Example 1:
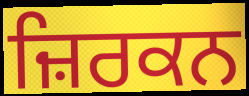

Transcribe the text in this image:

ਜ਼ਿਰਕਨ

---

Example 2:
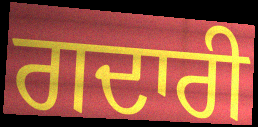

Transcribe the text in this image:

ਗਦਾਰੀ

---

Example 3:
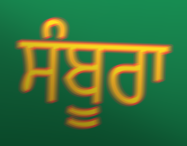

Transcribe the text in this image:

ਸੰਬੂਰਾ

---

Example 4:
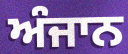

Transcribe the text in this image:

ਅੰਜਾਨ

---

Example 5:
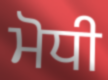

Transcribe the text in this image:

ਮੋਧੀ